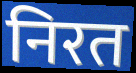
निरत